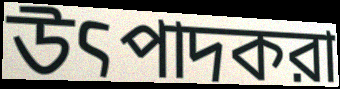
উৎপাদকরা